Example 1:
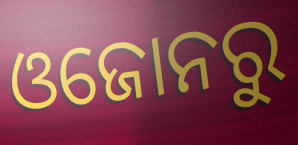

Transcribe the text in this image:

ଓଜୋନରୁ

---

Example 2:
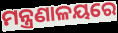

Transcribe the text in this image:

ମନ୍ତ୍ରଣାଳୟରେ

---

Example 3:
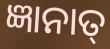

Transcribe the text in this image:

ଜ୍ଞାନାତ୍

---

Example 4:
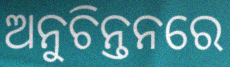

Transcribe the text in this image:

ଅନୁଚିନ୍ତନରେ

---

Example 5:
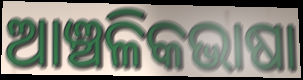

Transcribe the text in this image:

ଆଞ୍ଚଳିକଭାଷା